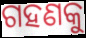
ଗହଣକୁ